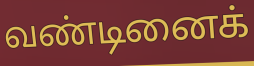
வண்டினைக்